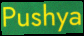
Pushya